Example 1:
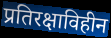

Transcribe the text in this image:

प्रतिरक्षाविहीन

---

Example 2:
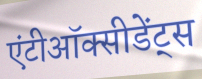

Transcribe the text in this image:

एंटीऑक्सीडेंट्स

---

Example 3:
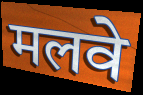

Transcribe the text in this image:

मलवे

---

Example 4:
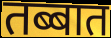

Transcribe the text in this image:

तब्बात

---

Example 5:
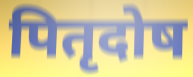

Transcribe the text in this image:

पितृदोष